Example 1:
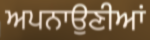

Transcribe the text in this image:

ਅਪਨਾਉਣੀਆਂ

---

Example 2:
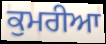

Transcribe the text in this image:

ਕੁਮਰੀਆ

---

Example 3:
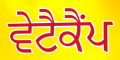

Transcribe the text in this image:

ਵੇਟੈਕੈਂਪ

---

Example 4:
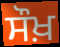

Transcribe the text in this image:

ਸੌਖ਼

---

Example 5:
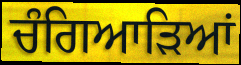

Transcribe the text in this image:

ਚੰਗਿਆੜਿਆਂ